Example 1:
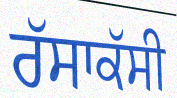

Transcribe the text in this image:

ਰੱਸਾਕੱਸੀ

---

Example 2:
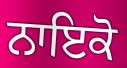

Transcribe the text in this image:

ਨਾਇਕੋ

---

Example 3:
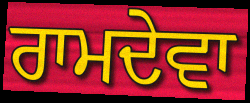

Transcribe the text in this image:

ਰਾਮਦੇਵਾ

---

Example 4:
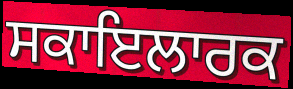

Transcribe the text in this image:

ਸਕਾਇਲਾਰਕ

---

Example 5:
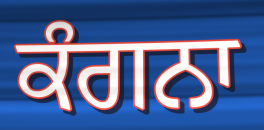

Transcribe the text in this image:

ਕੰਗਨਾ